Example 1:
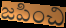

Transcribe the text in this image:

జపించి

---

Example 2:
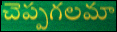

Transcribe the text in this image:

చెప్పగలమా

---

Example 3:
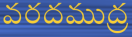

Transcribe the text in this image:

వరదముద్ర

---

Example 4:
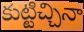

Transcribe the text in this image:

కుట్టిచ్చినా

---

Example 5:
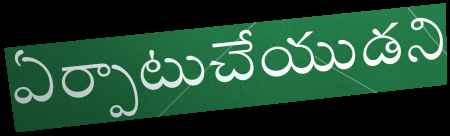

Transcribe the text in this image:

ఏర్పాటుచేయుడని